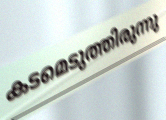
കടമെടുത്തിരുന്നു